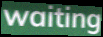
waiting